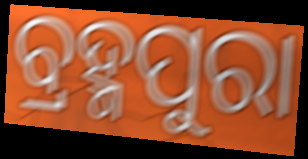
ବ୍ରହ୍ମପୁରା